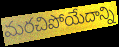
మరచిపోయేదాన్ని